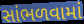
સાંભળવામાં